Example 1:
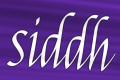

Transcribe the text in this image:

siddh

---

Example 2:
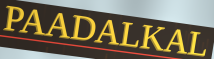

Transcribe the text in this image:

PAADALKAL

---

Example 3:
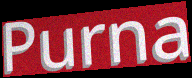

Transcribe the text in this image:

Purna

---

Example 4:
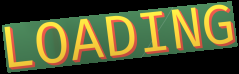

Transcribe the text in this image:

LOADING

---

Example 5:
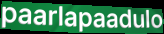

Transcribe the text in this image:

paarlapaadulo